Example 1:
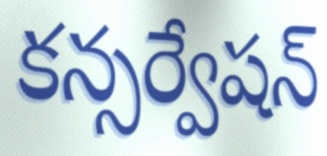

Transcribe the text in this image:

కన్సర్వేషన్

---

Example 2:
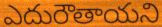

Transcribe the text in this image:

ఎదురౌతాయని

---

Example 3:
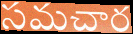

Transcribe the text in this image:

సమచార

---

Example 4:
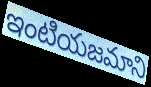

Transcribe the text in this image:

ఇంటియజమాని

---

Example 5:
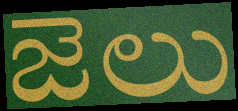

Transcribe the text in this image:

జెలు